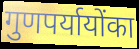
गुणपर्यायोंका